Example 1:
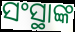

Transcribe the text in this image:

ସଂସ୍ଥାଙ୍କ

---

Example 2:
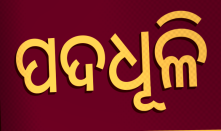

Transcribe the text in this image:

ପଦଧୂଳି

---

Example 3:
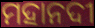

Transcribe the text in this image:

ମହାନଦୀ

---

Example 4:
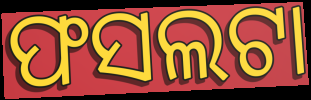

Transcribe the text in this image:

ଫସଲଟା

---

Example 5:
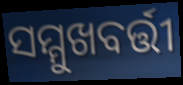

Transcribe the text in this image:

ସମ୍ମୁଖବର୍ତ୍ତୀ